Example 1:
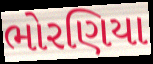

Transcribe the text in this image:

ભોરણિયા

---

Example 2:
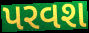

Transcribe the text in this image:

પરવશ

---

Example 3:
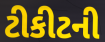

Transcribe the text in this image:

ટીકીટની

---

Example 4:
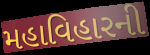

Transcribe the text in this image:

મહાવિહારની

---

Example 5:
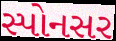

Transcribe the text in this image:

સ્પોનસર